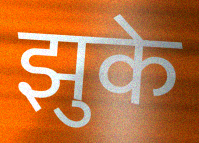
झुके